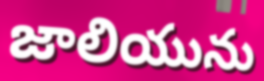
జాలియును